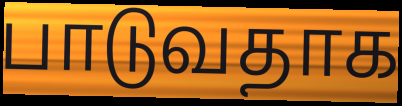
பாடுவதாக